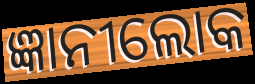
ଜ୍ଞାନୀଲୋକ